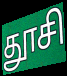
தூசி